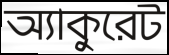
অ্যাকুরেট